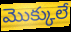
మొక్కులే